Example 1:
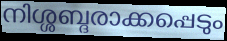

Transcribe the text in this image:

നിശ്ശബ്ദരാക്കപ്പെടും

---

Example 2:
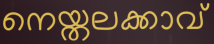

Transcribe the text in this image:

നെയ്തലക്കാവ്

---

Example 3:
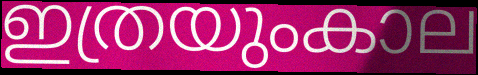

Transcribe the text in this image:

ഇത്രയുംകാല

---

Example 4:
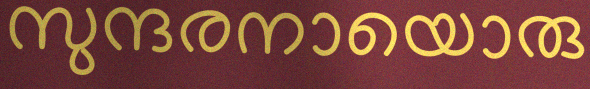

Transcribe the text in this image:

സുന്ദരനായൊരു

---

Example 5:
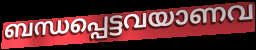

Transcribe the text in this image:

ബന്ധപ്പെട്ടവയാണവ